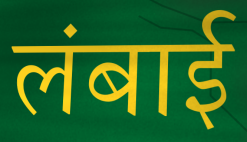
लंबाई